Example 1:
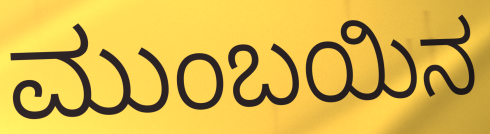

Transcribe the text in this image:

ಮುಂಬಯಿನ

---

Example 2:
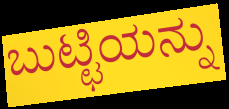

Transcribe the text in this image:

ಬುಟ್ಟಿಯನ್ನು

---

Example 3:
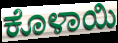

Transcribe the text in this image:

ಕೊಳಾಯಿ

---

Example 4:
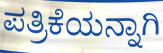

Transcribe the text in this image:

ಪತ್ರಿಕೆಯನ್ನಾಗಿ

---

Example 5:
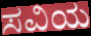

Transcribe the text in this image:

ಸವಿಯ